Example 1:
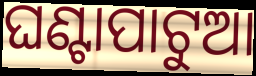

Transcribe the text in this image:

ଘଣ୍ଟାପାଟୁଆ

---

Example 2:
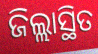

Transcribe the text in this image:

ଜିଲ୍ଲାସ୍ଥିତ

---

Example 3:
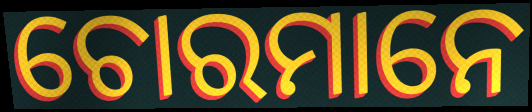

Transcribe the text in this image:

ଚୋରମାନେ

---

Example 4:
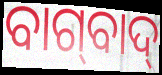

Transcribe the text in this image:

ବାଗ୍‌ବାଦ୍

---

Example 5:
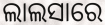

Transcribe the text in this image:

ଲାଲସାରେ